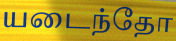
யடைந்தோ